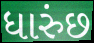
ધારુંછ